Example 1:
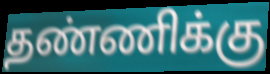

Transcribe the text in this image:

தண்ணிக்கு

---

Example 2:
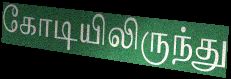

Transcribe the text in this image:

கோடியிலிருந்து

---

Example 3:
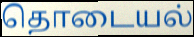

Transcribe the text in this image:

தொடையல்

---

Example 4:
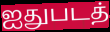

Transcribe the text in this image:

ஐதுபடத்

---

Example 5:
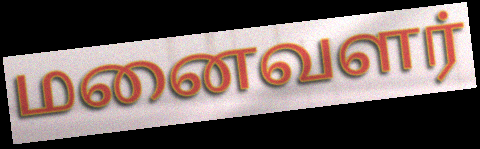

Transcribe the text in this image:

மனைவளர்